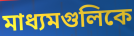
মাধ্যমগুলিকে